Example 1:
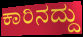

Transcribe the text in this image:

ಕಾರಿನದ್ದು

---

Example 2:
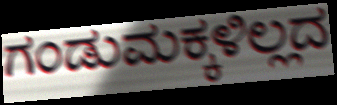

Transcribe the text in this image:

ಗಂಡುಮಕ್ಕಳಿಲ್ಲದ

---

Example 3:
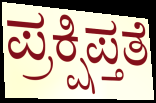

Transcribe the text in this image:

ಪ್ರಕ್ಷಿಪ್ತತೆ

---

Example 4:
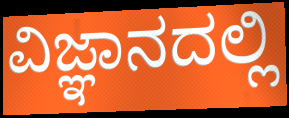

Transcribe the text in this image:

ವಿಜ್ಞಾನದಲ್ಲಿ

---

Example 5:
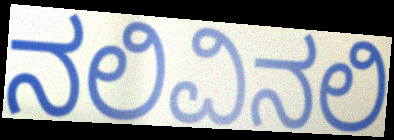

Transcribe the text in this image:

ನಲಿವಿನಲಿ